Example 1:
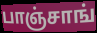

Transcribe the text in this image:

பாஞ்சாங்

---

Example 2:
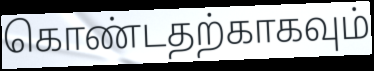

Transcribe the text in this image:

கொண்டதற்காகவும்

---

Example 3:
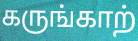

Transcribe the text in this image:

கருங்காற்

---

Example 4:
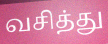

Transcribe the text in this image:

வசித்து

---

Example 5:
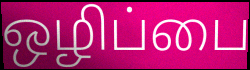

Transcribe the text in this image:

ஒழிப்பை